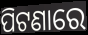
ପିଟଣାରେ